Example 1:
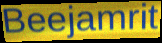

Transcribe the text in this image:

Beejamrit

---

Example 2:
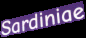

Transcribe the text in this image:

Sardiniae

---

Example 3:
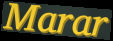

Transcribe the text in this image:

Marar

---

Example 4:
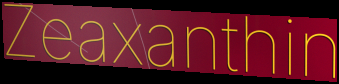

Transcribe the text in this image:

Zeaxanthin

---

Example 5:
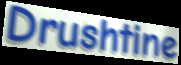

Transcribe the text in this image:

Drushtine